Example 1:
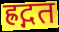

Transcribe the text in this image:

ह्रद्गत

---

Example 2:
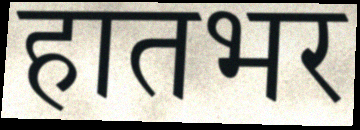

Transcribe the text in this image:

हातभर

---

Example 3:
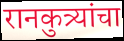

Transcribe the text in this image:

रानकुत्र्यांचा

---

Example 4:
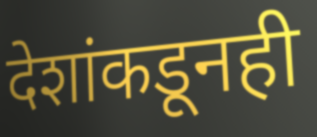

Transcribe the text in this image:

देशांकडूनही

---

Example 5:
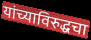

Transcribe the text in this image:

यांच्याविरुद्धचा